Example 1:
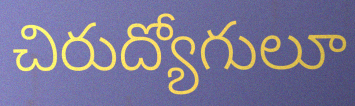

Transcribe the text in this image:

చిరుద్యోగులూ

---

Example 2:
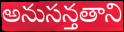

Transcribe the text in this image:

అనుసన్తతాని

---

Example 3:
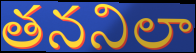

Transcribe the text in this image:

తననిలా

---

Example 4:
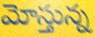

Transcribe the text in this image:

మోస్తున్న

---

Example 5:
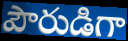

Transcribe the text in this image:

పౌరుడిగా